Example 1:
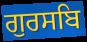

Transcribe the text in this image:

ਗੁਰਸਬਿ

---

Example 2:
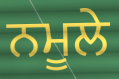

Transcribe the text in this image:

ਨਮੂਲੇ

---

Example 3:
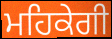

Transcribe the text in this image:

ਮਹਿਕੇਗੀ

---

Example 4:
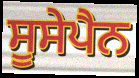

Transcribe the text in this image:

ਸੂਸੇਪੈਨ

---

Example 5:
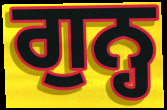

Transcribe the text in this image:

ਗੁਨ੍ਹ